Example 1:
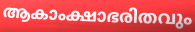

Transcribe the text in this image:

ആകാംക്ഷാഭരിതവും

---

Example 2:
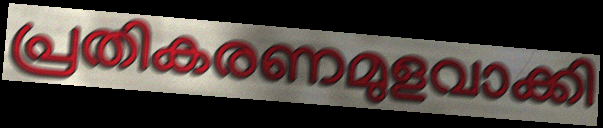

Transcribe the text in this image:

പ്രതികരണമുളവാക്കി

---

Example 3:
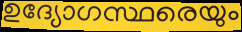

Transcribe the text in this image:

ഉദ്യോഗസ്ഥരെയും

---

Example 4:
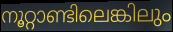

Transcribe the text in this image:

നൂറ്റാണ്ടിലെങ്കിലും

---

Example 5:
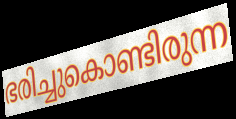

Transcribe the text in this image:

ഭരിച്ചുകൊണ്ടിരുന്ന